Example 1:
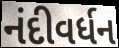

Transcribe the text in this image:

નંદીવર્ધન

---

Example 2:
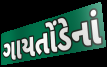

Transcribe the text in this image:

ગાયતોંડેનાં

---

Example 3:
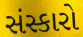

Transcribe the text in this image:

સંસ્કારો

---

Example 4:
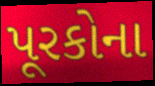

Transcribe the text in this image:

પૂરકોના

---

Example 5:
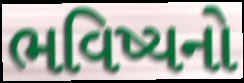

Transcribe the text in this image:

ભવિષ્યનો